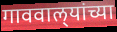
गाववाल्यांच्या